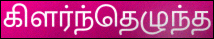
கிளர்ந்தெழுந்த